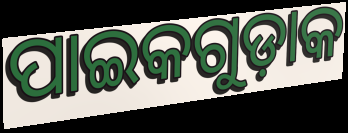
ପାଇକଗୁଡ଼ାକ